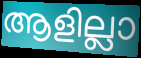
ആളില്ലാ